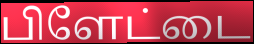
பிளேட்டை